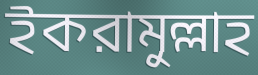
ইকরামুল্লাহ